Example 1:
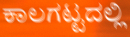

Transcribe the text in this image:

ಕಾಲಗಟ್ಟದಲ್ಲಿ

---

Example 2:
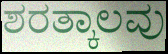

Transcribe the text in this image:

ಶರತ್ಕಾಲವು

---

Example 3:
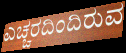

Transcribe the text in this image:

ಎಚ್ಚರದಿಂದಿರುವ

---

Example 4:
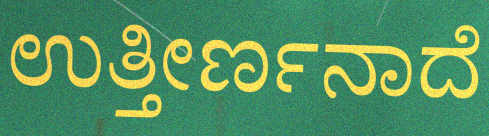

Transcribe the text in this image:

ಉತ್ತೀರ್ಣನಾದೆ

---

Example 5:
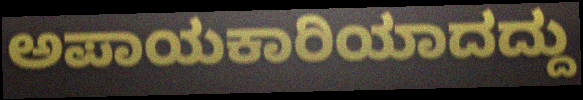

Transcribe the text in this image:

ಅಪಾಯಕಾರಿಯಾದದ್ದು